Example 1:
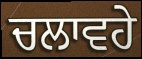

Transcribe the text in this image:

ਚਲਾਵਹੇ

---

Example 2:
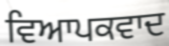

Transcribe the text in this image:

ਵਿਆਪਕਵਾਦ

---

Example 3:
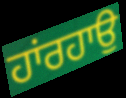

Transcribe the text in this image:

ਹਾਂਰਹਾਉ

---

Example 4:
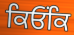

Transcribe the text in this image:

ਕਿਓਂਕਿ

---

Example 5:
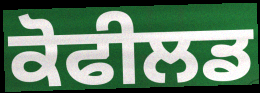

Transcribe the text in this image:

ਕੋਫੀਲਡ